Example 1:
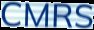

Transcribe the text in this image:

CMRS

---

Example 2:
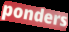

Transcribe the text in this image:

ponders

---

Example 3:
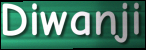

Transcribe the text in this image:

Diwanji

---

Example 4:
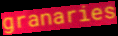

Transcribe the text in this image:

granaries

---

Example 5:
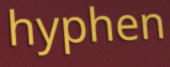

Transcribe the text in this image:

hyphen